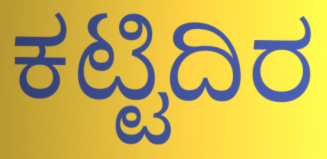
ಕಟ್ಟಿದಿರ